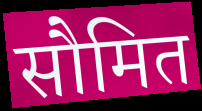
सौमित